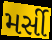
મર્સી